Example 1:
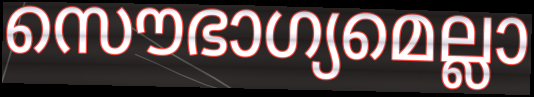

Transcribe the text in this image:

സൌഭാഗ്യമെല്ലാ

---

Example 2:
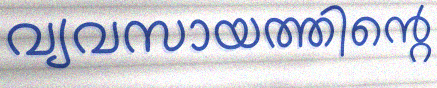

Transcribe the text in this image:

വ്യവസായത്തിന്റെ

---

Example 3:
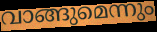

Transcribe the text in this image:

വാങ്ങുമെന്നും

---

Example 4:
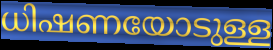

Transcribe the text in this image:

ധിഷണയോടുള്ള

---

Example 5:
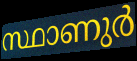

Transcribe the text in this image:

സ്ഥാണുർ